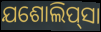
ଯଶୋଲିପ୍‌ସା